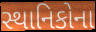
સ્થાનિકોના